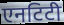
एनटिटी